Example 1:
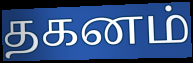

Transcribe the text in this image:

தகனம்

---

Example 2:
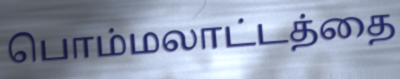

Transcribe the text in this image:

பொம்மலாட்டத்தை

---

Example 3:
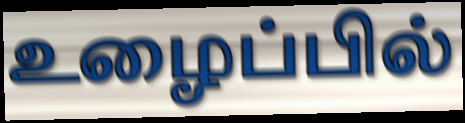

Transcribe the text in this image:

உழைப்பில்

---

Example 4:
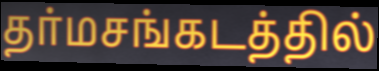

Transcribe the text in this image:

தர்மசங்கடத்தில்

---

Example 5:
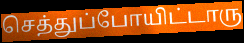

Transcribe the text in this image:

செத்துப்போயிட்டாரு